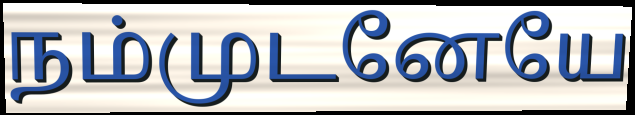
நம்முடனேயே